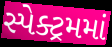
સ્પેક્ટ્રમમાં